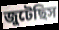
জুটেছিস